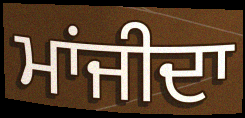
ਮਾਂਜੀਦਾ